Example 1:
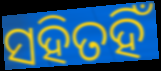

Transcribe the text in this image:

ସହିତହିଁ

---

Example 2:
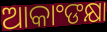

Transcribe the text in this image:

ଆକାଂଙକ୍ଷା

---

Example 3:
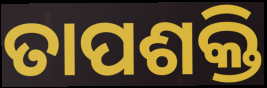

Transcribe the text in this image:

ତାପଶକ୍ତି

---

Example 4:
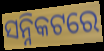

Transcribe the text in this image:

ସନ୍ନିକଟରେ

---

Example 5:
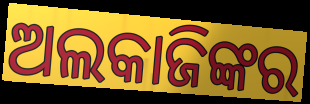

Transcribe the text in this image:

ଅଲକାଜିଙ୍କର